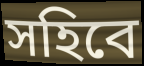
সহিবে